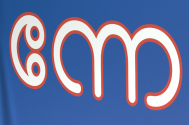
ന്നേ